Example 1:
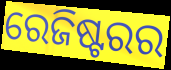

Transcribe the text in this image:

ରେଜିଷ୍ଟରର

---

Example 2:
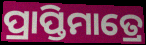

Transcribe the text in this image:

ପ୍ରାପ୍ତିମାତ୍ରେ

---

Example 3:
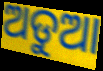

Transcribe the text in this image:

ଅଡୁଆ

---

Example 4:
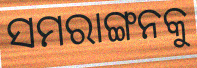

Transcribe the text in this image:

ସମରାଙ୍ଗନକୁ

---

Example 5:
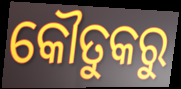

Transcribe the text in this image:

କୌତୁକରୁ